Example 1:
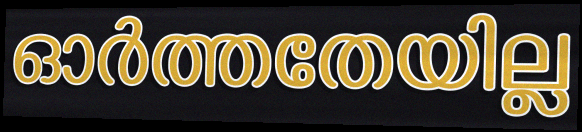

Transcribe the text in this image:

ഓർത്തതേയില്ല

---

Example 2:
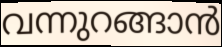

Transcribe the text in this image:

വന്നുറങ്ങാൻ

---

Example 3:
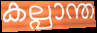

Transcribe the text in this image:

കല്പാന്ത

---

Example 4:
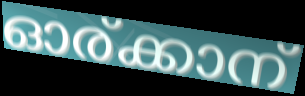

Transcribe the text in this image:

ഓര്ക്കാന്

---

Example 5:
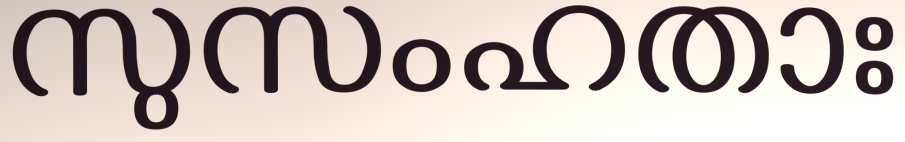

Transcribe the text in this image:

സുസംഹതാഃ